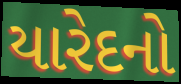
યારેદનો